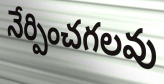
నేర్పించగలవు